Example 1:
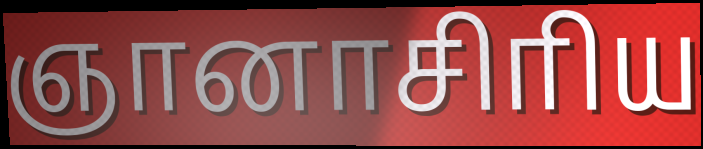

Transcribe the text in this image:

ஞானாசிரிய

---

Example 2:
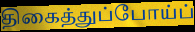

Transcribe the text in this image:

திகைத்துப்போய்ப்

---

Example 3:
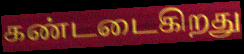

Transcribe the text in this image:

கண்டடைகிறது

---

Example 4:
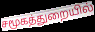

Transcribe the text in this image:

சமூகத்துறையில்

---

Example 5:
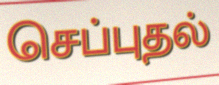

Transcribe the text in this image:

செப்புதல்